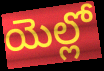
యెల్లో